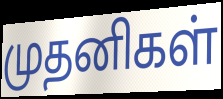
முதனிகள்